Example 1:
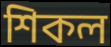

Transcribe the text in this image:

শিকল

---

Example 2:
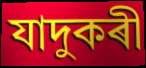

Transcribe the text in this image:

যাদুকৰী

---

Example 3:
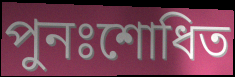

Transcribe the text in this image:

পুনঃশোধিত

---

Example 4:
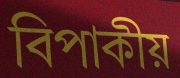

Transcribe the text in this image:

বিপাকীয়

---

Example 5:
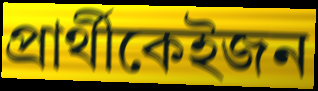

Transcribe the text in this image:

প্ৰাৰ্থীকেইজন